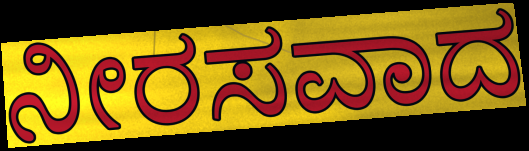
ನೀರಸವಾದ